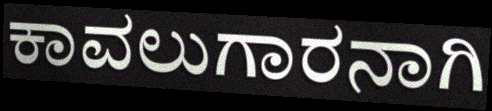
ಕಾವಲುಗಾರನಾಗಿ